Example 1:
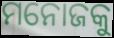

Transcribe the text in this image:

ମନୋଜକୁ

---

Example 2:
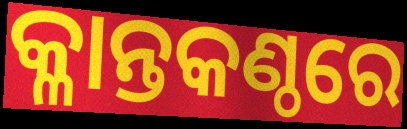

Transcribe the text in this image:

କ୍ଳାନ୍ତକଣ୍ଠରେ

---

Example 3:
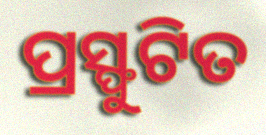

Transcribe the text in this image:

ପ୍ରସ୍ଫୁଟିତ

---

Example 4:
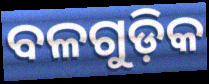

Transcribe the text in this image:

ବଳଗୁଡ଼ିକ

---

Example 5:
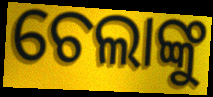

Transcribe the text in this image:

ଚେଲାଙ୍କୁ